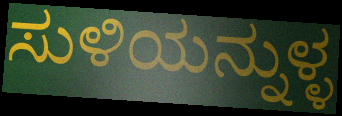
ಸುಳಿಯನ್ನುಳ್ಳ